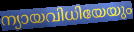
ന്യായവിധിയേയും